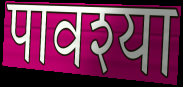
पावश्या